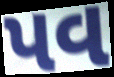
પવ